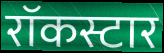
रॉकस्टार